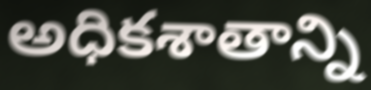
అధికశాతాన్ని